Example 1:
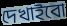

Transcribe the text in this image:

দেখাইবো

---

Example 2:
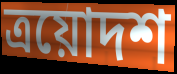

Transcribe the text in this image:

ত্রয়োদশ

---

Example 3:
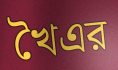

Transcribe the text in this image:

খৈএর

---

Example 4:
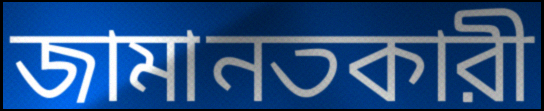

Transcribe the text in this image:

জামানতকারী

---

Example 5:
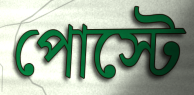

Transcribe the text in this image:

পোস্টে